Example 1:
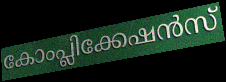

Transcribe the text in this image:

കോംപ്ലിക്കേഷൻസ്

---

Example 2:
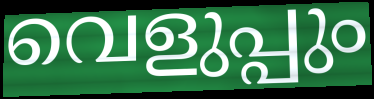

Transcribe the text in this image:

വെളുപ്പും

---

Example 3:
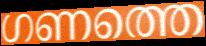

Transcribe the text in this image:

ഗണത്തെ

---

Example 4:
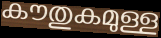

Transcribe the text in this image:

കൗതുകമുള്ള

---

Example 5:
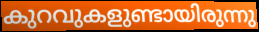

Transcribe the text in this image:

കുറവുകളുണ്ടായിരുന്നു